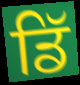
ਡਿੱ